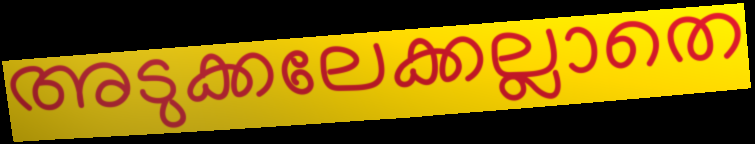
അടുക്കലേക്കല്ലാതെ